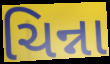
ચિન્ના